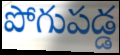
పోగుపడ్డ